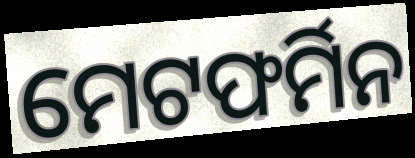
ମେଟଫର୍ମିନ